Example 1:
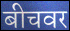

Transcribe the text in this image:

बीचवर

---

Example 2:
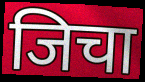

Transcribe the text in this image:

जिचा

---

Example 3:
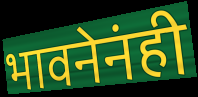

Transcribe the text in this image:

भावनेनंही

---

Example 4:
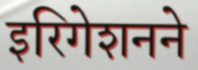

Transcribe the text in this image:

इरिगेशनने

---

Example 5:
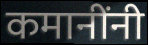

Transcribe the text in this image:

कमानींनी